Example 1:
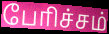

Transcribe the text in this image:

பேரிச்சம்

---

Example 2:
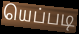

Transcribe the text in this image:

யெப்படி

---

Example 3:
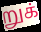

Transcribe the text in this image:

றுக்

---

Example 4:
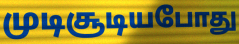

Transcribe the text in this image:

முடிசூடியபோது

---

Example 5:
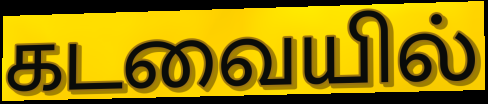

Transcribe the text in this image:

கடவையில்